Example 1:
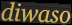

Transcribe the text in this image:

diwaso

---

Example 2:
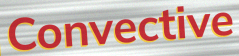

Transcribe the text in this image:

Convective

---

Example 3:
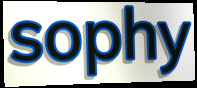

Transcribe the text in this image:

sophy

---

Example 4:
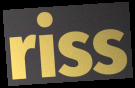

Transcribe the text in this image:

riss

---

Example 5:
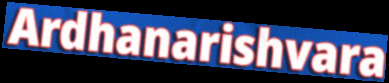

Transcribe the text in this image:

Ardhanarishvara